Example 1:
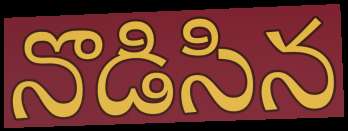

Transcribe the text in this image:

నొడిసిన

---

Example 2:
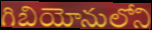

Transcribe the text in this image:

గిబియోనులోని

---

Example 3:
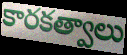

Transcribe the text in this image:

కారకత్వాలు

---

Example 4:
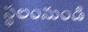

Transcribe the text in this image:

స్థలంనుండి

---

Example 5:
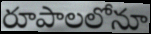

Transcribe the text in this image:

రూపాలలోనూ